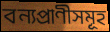
বন্যপ্ৰাণীসমূহ